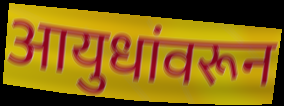
आयुधांवरून